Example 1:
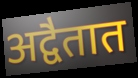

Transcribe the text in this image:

अद्वैतात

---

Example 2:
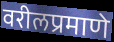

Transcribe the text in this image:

वरीलप्रमाणे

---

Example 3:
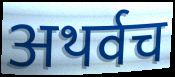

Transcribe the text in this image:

अथर्वच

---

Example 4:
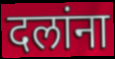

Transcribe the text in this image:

दलांना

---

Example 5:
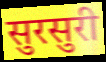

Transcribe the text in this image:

सुरसुरी